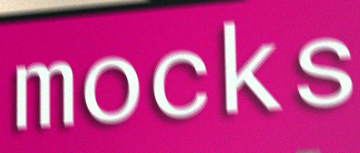
mocks